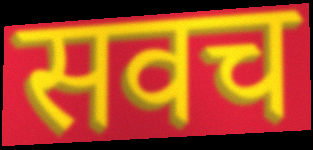
सवच